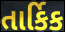
તાર્કિક